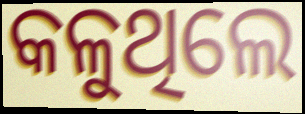
କଳୁଥିଲେ